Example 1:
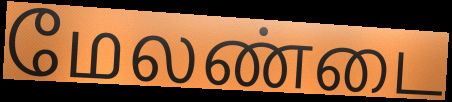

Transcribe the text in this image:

மேலண்டை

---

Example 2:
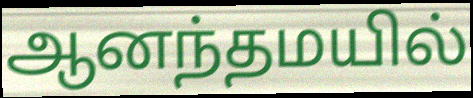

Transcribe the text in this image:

ஆனந்தமயில்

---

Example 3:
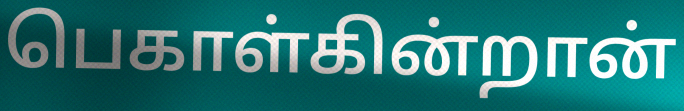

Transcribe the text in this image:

பெகாள்கின்றான்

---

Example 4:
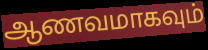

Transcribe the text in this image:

ஆணவமாகவும்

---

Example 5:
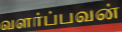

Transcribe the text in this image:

வளர்ப்பவன்